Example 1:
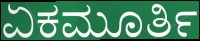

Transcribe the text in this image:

ಏಕಮೂರ್ತಿ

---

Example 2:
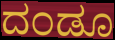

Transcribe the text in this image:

ದಂಡೂ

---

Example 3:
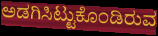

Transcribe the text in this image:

ಅಡಗಿಸಿಟ್ಟುಕೊಂಡಿರುವ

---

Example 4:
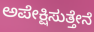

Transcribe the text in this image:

ಅಪೇಕ್ಷಿಸುತ್ತೇನೆ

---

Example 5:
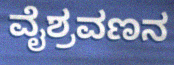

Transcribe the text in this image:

ವೈಶ್ರವಣನ